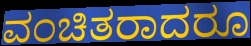
ವಂಚಿತರಾದರೂ